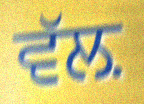
ਵੱਲ਼